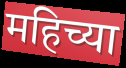
महिच्या